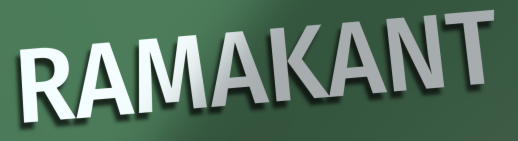
RAMAKANT